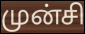
முன்சி